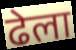
ढेला